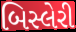
બિસ્લેરી